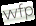
wfp